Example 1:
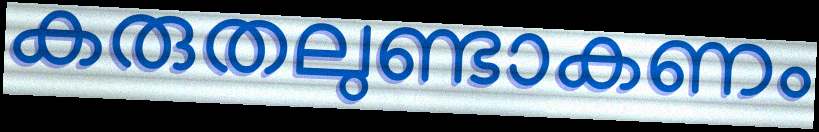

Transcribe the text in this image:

കരുതലുണ്ടാകണം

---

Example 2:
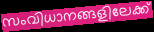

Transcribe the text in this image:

സംവിധാനങ്ങളിലേക്ക്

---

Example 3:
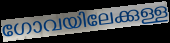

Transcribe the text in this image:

ഗോവയിലേക്കുള്ള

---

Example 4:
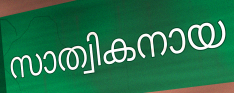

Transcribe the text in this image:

സാത്വികനായ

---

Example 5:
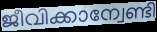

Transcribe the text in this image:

ജീവിക്കാന്വേണ്ടി